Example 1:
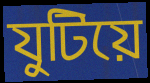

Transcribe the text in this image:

যুটিয়ে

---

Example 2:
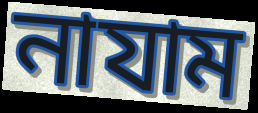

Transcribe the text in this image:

নাযাম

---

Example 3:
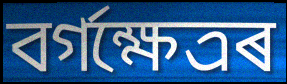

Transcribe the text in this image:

বৰ্গক্ষেত্ৰৰ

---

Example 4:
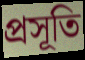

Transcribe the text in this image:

প্ৰসূতি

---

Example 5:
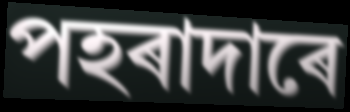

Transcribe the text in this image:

পহৰাদাৰে